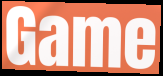
Game